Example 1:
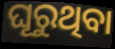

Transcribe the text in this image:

ଘୂରୁଥିବା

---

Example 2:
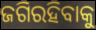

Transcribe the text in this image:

ଜଗିରହିବାକୁ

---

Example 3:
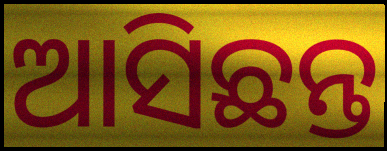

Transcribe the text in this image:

ଆସିଛନ୍ତ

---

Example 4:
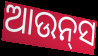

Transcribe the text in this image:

ଆଉନ୍‍ସ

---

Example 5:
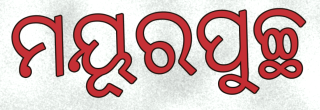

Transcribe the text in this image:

ମୟୂରପୁଚ୍ଛ